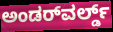
ಅಂಡರ್‌ವರ್ಲ್ಡ್